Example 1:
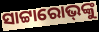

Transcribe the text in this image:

ସାଟ୍ଟାରୋଭ୍‌ଙ୍କୁ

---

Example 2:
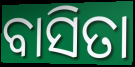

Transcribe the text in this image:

ବାସିତା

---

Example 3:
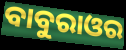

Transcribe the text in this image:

ବାବୁରାଓର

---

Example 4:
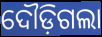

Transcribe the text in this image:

ଦୌଡ଼ିଗଲା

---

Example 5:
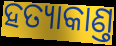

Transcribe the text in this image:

ହତ୍ୟାକାଣ୍ତ